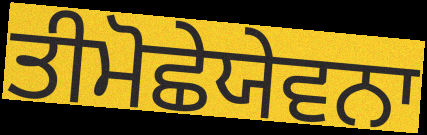
ਤੀਮੋਛੇਯੇਵਨਾ